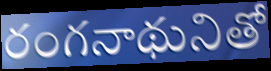
రంగనాథునితో